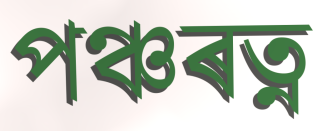
পঞ্চৰত্ন